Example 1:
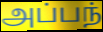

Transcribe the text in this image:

அப்பந்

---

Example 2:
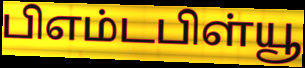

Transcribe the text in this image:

பிஎம்டபிள்யூ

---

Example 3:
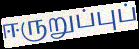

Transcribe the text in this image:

ஈருறுப்புப்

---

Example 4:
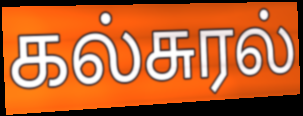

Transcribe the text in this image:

கல்சுரல்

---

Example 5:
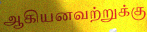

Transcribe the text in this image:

ஆகியனவற்றுக்கு